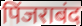
पिंजराबंद